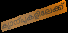
ക്യാന്പുകളിലേക്ക്